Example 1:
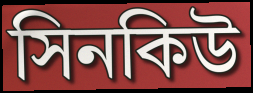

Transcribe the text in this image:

সিনকিউ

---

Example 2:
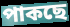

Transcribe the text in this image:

পাকছে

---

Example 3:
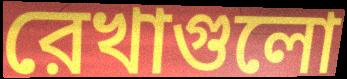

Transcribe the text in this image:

রেখাগুলো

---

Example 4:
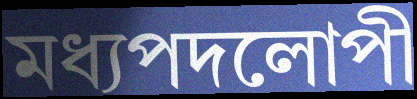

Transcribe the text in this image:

মধ্যপদলোপী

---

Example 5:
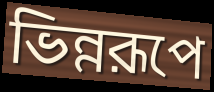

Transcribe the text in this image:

ভিন্নরূপে